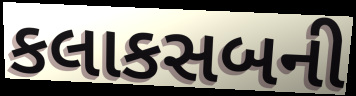
કલાકસબની